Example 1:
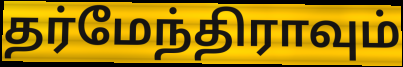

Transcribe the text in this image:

தர்மேந்திராவும்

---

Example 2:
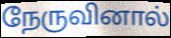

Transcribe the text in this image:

நேருவினால்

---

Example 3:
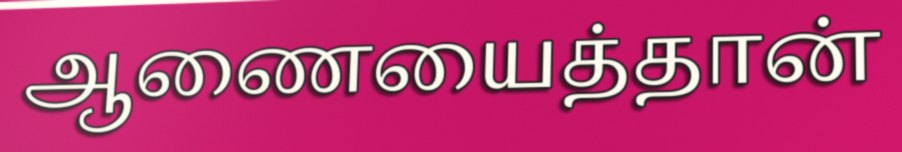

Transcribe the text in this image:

ஆணையைத்தான்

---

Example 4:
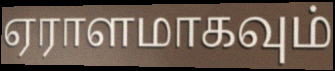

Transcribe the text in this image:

ஏராளமாகவும்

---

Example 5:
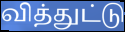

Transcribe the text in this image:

வித்துட்டு